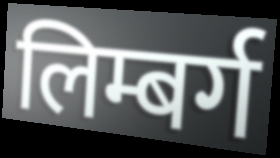
लिम्बर्ग